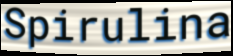
Spirulina